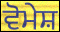
ਵੋਮੇਸ਼